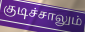
குடிச்சாலும்